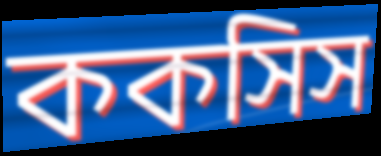
ককসিস